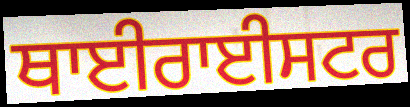
ਥਾਈਰਾਈਸਟਰ